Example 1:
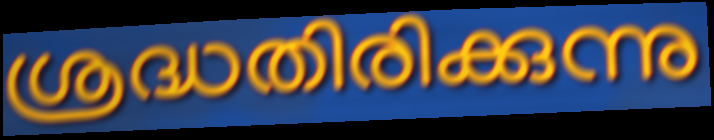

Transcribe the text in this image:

ശ്രദ്ധതിരിക്കുന്നു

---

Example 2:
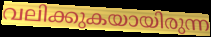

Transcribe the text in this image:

വലിക്കുകയായിരുന്ന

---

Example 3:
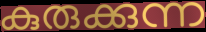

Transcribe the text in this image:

കുരുക്കുന്ന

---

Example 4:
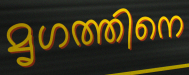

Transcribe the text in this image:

മൃഗത്തിനെ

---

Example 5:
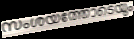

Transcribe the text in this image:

സംശയത്തോടെയും